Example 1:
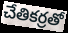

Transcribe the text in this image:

చేతికర్రతో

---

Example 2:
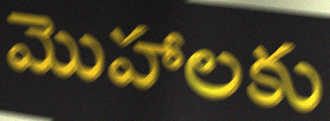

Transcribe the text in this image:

మొహాలకు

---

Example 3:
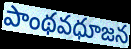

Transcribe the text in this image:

పాంథవధూజన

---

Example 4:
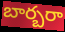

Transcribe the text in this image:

బార్బరా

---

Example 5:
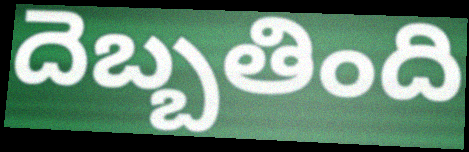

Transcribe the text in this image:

దెబ్బతింది